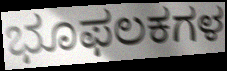
ಭೂಫಲಕಗಳ